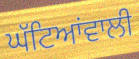
ਘੱਟਿਆਂਵਾਲੀ